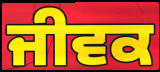
ਜੀਵਕ